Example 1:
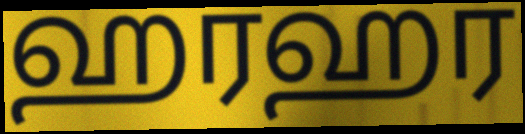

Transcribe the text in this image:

ஹரஹர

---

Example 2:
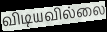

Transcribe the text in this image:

விடியவில்லை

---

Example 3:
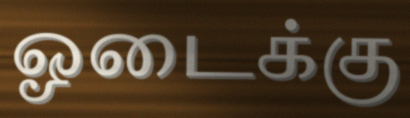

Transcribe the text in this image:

ஓடைக்கு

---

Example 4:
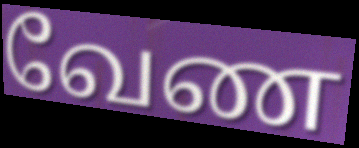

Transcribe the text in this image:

வேண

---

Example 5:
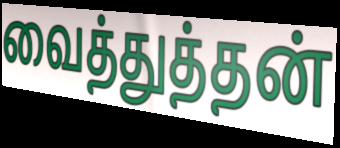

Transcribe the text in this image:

வைத்துத்தன்